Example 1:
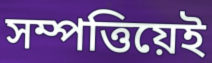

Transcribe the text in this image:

সম্পত্তিয়েই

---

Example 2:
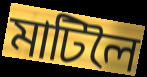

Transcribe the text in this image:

মাটিলৈ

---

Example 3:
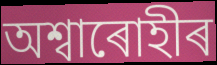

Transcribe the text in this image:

অশ্বাৰোহীৰ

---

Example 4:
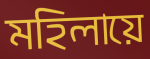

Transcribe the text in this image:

মহিলায়ে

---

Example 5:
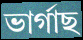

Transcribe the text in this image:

ভাৰ্গাছ